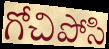
గోచిపోసి